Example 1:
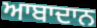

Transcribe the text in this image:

ਆਬਾਦਾਨ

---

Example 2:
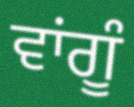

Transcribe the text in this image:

ਵਾਂਗੂੰ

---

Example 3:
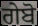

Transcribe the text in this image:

ਗੇਬੋ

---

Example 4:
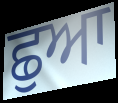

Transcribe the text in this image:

ਛੁਆ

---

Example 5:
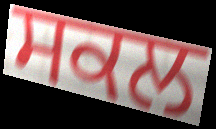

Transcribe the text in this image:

ਸਕਲ